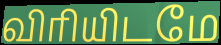
விரியிடமே